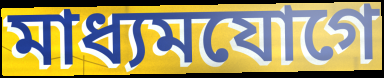
মাধ্যমযোগে